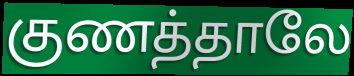
குணத்தாலே